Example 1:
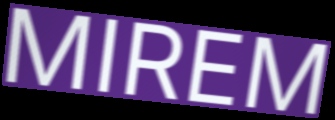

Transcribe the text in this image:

MIREM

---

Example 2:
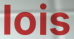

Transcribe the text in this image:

lois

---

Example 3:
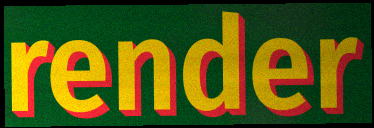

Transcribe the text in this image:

render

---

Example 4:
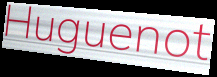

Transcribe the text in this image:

Huguenot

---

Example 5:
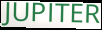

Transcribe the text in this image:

JUPITER